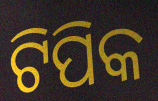
ଟିପିକ